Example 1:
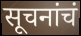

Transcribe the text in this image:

सूचनांचं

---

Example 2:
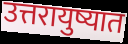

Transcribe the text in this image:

उत्तरायुष्यात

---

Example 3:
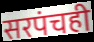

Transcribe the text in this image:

सरपंचही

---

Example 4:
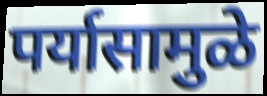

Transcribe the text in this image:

पर्यासामुळे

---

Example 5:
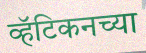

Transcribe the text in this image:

व्हॅटिकनच्या